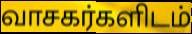
வாசகர்களிடம்